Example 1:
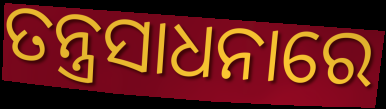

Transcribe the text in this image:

ତନ୍ତ୍ରସାଧନାରେ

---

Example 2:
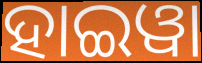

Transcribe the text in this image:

ହାଇୱା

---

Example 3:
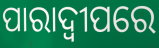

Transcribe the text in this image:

ପାରାଦ୍ବୀପରେ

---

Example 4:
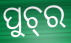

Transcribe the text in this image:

ପୁଚ୍‍ର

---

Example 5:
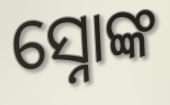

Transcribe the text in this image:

ସ୍ନୋଙ୍କ